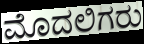
ಮೊದಲಿಗರು